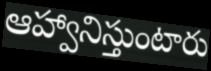
ఆహ్వానిస్తుంటారు